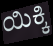
ಯಿಕ್ಕಿ